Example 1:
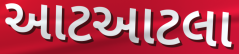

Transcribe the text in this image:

આટઆટલા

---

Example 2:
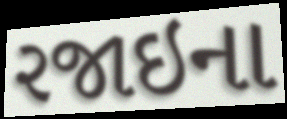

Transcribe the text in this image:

રજાઇના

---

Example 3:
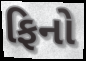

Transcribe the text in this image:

ફિનો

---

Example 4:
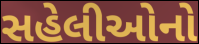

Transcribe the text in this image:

સહેલીઓનો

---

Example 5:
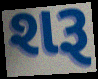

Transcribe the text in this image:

શરૂ